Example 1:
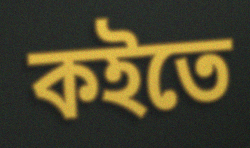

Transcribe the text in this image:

কইতে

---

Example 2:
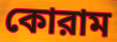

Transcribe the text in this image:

কোরাম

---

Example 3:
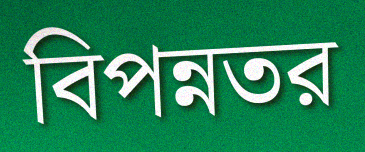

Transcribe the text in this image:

বিপন্নতর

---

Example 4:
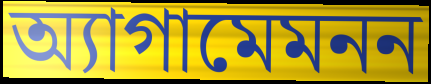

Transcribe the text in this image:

অ্যাগামেমনন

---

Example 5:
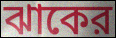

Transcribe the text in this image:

ঝাকের